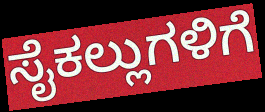
ಸೈಕಲ್ಲುಗಳಿಗೆ